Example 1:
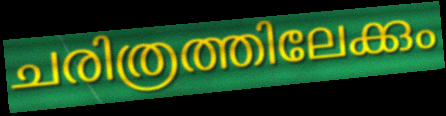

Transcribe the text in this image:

ചരിത്രത്തിലേക്കും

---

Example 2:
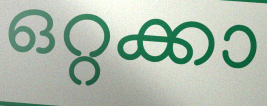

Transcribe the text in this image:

ഒറ്റക്കാ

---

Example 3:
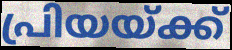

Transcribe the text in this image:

പ്രിയയ്ക്ക്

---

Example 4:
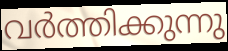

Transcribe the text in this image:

വർത്തിക്കുന്നു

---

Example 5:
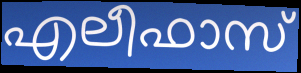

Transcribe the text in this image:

എലീഫാസ്